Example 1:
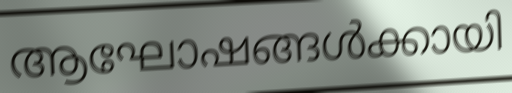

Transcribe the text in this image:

ആഘോഷങ്ങൾക്കായി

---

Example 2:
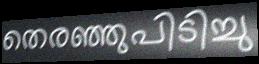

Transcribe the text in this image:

തെരഞ്ഞുപിടിച്ചു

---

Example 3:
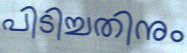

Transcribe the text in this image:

പിടിച്ചതിനും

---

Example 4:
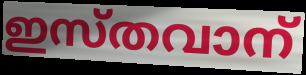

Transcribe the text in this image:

ഇസ്തവാന്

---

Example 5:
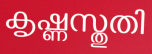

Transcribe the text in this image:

കൃഷ്ണസ്തുതി